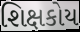
શિક્ષકોય